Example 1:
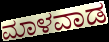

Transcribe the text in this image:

ಮಾಳವಾಡ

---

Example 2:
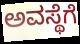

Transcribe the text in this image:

ಅವಸ್ಥೆಗೆ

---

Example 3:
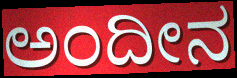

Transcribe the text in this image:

ಅಂದೀನ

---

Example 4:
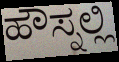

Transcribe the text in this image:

ಹೌಸ್ನಲ್ಲಿ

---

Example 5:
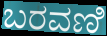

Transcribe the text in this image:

ಬರವಣಿ